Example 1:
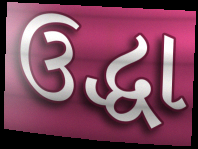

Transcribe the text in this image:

ઉદ્ધા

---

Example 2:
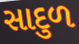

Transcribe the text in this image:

સાદુળ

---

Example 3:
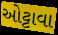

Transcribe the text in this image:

ઓટ્ટાવા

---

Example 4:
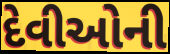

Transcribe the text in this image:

દેવીઓની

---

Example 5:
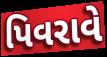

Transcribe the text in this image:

પિવરાવે